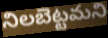
నిలబెట్టమని